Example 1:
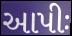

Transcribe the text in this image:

આપીઃ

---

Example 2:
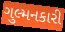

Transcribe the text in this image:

ગુલ્મનકારી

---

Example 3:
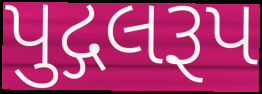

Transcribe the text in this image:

પુદ્ગલરૂપ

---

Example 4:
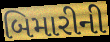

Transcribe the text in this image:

બિમારીની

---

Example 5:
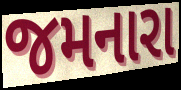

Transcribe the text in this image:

જમનારા